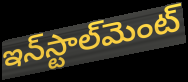
ఇన్‌స్టాల్‌మెంట్